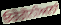
ਓਰੇਗੋਨੀਅਨਾਂ